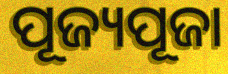
ପୂଜ୍ୟପୂଜା